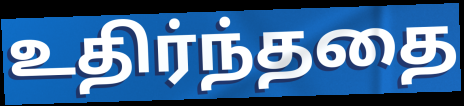
உதிர்ந்ததை